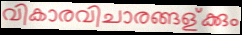
വികാരവിചാരങ്ങള്ക്കും